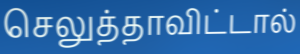
செலுத்தாவிட்டால்